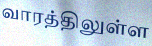
வாரத்திலுள்ள